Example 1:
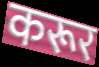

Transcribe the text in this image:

करूर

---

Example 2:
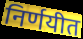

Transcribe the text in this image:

निर्णयीत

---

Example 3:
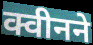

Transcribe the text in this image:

क्वीनने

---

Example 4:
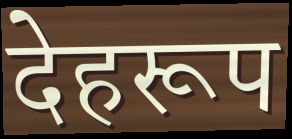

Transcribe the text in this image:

देहरूप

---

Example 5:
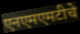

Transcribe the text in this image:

एनएमएमटीचे